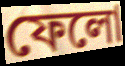
ফেলো